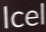
Icel